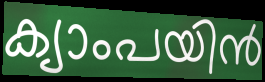
ക്യാംപയിൻ